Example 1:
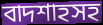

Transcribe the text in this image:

বাদশাহসহ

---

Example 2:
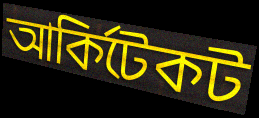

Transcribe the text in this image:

আর্কিটেকট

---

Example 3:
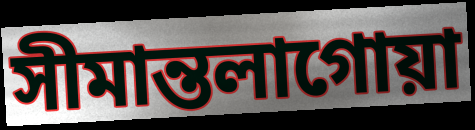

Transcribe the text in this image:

সীমান্তলাগোয়া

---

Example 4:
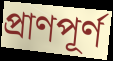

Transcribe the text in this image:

প্রাণপূর্ণ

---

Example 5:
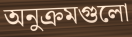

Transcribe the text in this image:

অনুক্রমগুলো